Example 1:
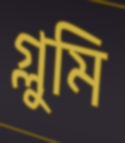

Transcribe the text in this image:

গ্লুমি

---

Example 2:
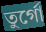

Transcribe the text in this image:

তুর্গো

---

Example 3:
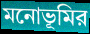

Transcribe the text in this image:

মনোভূমির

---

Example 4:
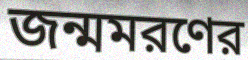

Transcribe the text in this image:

জন্মমরণের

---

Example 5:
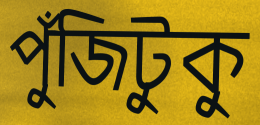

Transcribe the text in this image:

পুঁজিটুকু